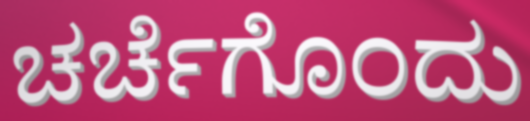
ಚರ್ಚೆಗೊಂದು